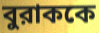
বুরাককে